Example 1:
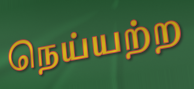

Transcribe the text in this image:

நெய்யற்ற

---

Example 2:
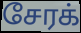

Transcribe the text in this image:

சேரக்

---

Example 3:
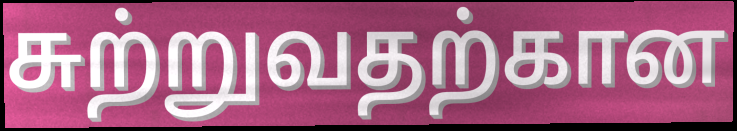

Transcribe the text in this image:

சுற்றுவதற்கான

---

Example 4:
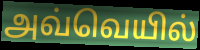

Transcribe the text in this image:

அவ்வெயில்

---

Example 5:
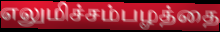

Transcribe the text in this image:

எலுமிச்சம்பழத்தை